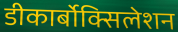
डीकार्बोक्सिलेशन